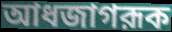
আধজাগরূক